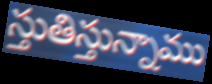
స్తుతిస్తున్నాము